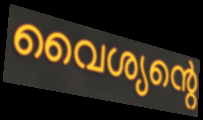
വൈശ്യന്റെ